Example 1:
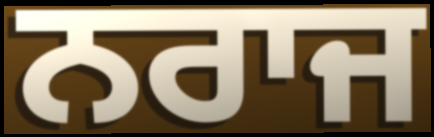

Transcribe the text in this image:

ਨਰਾਜ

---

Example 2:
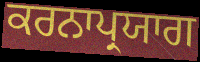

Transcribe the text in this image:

ਕਰਨਾਪ੍ਰਯਾਗ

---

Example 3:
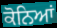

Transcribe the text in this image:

ਕੋਨਿਆਂ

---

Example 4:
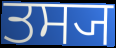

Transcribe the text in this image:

ਤਸ੍ਯ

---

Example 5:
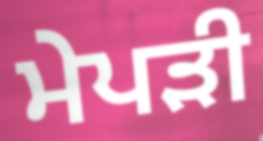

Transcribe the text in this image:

ਮੇਪੜੀ